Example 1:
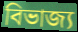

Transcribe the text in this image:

বিভাজ্য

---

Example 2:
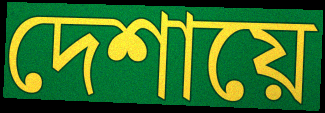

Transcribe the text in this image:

দেশায়ে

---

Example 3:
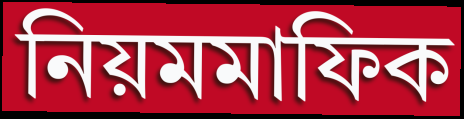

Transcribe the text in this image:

নিয়মমাফিক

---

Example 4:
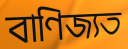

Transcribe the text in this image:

বাণিজ্যত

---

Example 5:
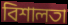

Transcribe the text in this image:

বিশালতা